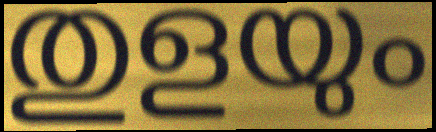
തുളയും